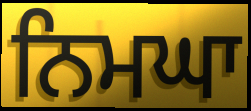
ਨਿਮਘਾ